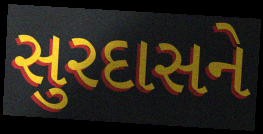
સુરદાસને